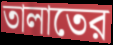
তালাতের